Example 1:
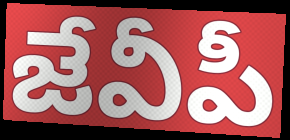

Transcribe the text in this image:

జేవీపీ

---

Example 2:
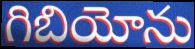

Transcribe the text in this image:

గిబియోను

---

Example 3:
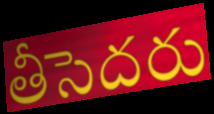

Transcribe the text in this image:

తీసెదరు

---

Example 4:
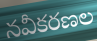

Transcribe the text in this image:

నవీకరణల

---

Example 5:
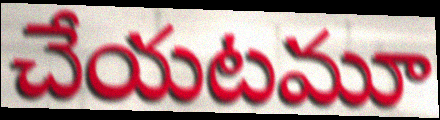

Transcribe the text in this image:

చేయటమూ